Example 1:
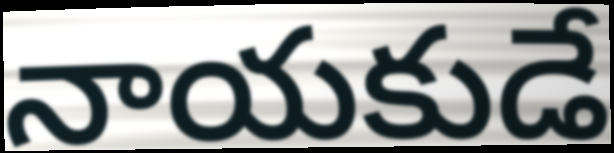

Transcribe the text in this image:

నాయకుడే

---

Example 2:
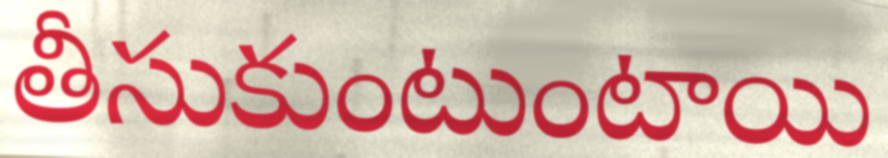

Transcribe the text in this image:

తీసుకుంటుంటాయి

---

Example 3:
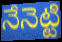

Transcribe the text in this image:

నేనెట్టి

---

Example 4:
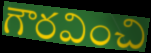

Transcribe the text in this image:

గౌరవించి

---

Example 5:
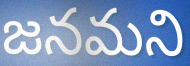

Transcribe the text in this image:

జనమని